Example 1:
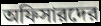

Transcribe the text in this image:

অফিসারদের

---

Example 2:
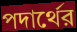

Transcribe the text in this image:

পদার্থের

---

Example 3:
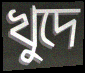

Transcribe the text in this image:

খুদে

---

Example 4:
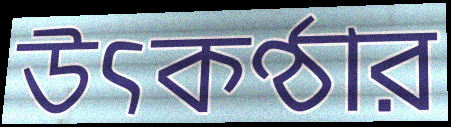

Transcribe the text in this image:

উৎকণ্ঠার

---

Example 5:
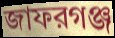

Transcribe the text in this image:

জাফরগঞ্জ